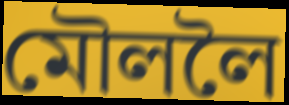
মৌললৈ